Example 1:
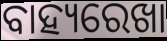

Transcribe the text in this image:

ବାହ୍ୟରେଖା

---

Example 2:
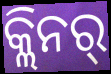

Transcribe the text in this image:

କ୍ଲିନର୍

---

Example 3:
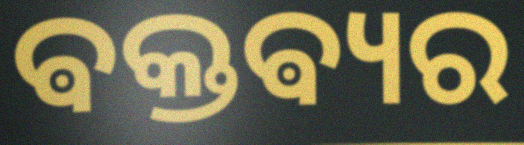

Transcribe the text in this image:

ଵକ୍ତଵ୍ୟର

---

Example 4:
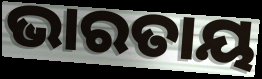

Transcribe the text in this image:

ଭାରତାୟ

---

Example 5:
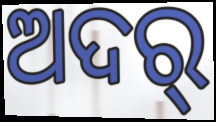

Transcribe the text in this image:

ଅଦର୍